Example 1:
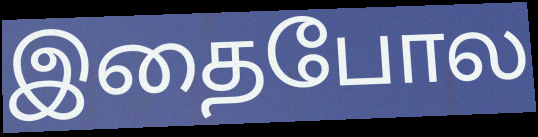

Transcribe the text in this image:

இதைபோல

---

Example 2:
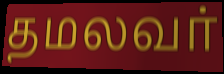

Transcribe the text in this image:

தமலவர்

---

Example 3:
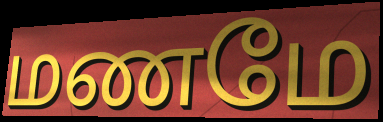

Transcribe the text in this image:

மணமே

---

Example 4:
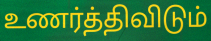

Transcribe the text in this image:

உணர்த்திவிடும்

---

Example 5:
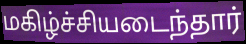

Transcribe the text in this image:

மகிழ்ச்சியடைந்தார்